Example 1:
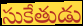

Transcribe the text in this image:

సుకేతుడు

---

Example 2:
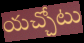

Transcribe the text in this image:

యచ్చోటు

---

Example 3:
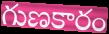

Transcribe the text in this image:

గుణకారం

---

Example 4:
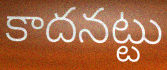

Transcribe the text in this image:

కాదనట్టు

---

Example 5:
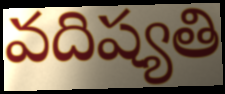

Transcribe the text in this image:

వదిష్యతి